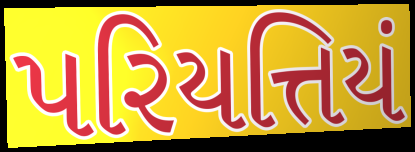
પરિયત્તિયં